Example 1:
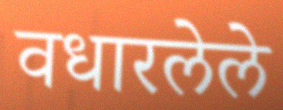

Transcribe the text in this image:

वधारलेले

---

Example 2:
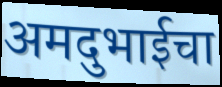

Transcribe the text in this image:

अमदुभाईचा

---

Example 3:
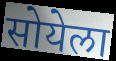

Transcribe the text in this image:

सोयेला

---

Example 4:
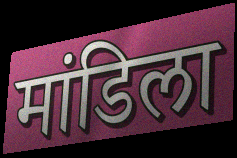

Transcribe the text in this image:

मांडिला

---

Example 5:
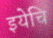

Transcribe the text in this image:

इयेचि